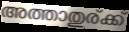
അത്താതുര്ക്ക്